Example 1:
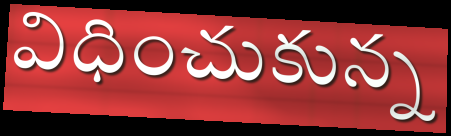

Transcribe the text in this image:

విధించుకున్న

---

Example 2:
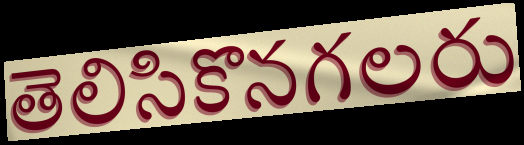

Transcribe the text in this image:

తెలిసికొనగలరు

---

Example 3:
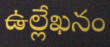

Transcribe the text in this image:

ఉల్లేఖనం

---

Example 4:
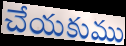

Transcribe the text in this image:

చేయకుము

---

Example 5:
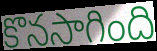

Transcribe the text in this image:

కొనసాగింది